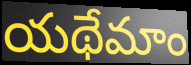
యథేమాం